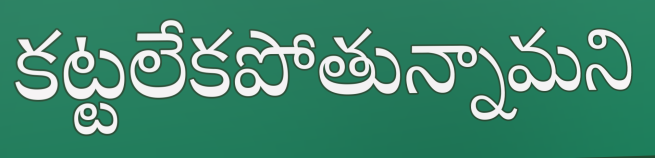
కట్టలేకపోతున్నామని